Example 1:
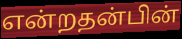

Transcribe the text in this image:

என்றதன்பின்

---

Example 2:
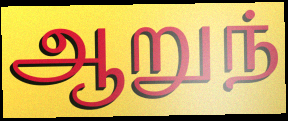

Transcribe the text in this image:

ஆறுந்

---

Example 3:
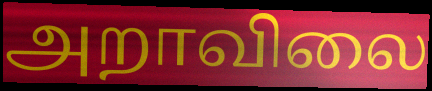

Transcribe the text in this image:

அறாவிலை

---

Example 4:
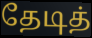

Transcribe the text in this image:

தேடித்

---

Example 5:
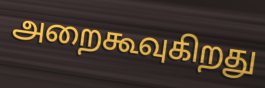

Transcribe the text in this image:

அறைகூவுகிறது